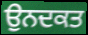
ਉਨਦਕਤ